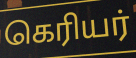
கெரியர்